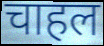
चाहल